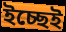
ইচ্ছেই